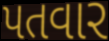
પતવાર